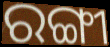
ରଙ୍ଗୀ